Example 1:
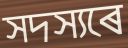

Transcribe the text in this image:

সদস্যৰে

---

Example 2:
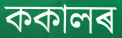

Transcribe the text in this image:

ককালৰ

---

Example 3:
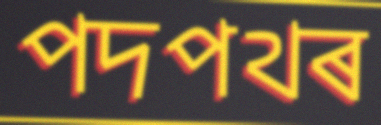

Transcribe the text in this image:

পদপথৰ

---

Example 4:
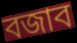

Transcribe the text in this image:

বজাব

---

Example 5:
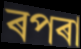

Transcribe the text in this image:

ৰপৰা